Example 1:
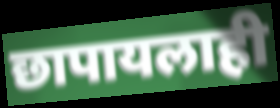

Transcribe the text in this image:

छापायलाही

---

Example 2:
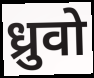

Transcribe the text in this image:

ध्रुवो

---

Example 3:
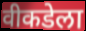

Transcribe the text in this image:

वीकडेला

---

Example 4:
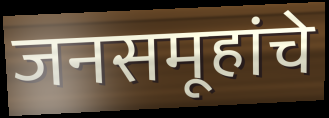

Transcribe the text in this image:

जनसमूहांचे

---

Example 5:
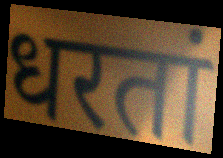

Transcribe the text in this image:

धरतां